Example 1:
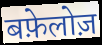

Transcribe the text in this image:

बफ़ेलोज़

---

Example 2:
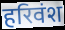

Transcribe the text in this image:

हरिवंश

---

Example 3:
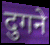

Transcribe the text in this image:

दुगने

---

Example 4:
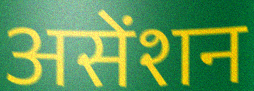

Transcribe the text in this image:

असेंशन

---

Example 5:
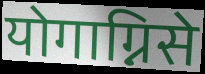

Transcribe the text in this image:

योगाग्निसे